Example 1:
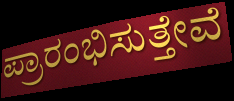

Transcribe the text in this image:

ಪ್ರಾರಂಭಿಸುತ್ತೇವೆ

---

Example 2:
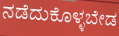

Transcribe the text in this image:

ನಡೆದುಕೊಳ್ಳಬೇಡ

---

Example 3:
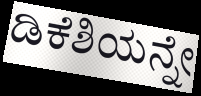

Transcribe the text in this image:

ಡಿಕೆಶಿಯನ್ನೇ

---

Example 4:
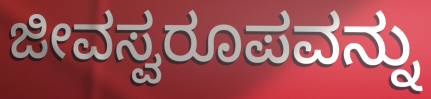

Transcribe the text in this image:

ಜೀವಸ್ವರೂಪವನ್ನು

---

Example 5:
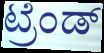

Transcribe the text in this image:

ಟ್ರೆಂಡ್